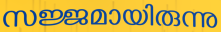
സജ്ജമായിരുന്നു